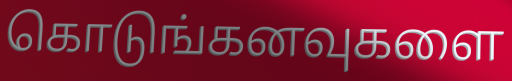
கொடுங்கனவுகளை